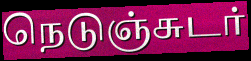
நெடுஞ்சுடர்